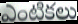
ఎంటికలు